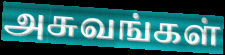
அசுவங்கள்